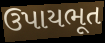
ઉપાયભૂત